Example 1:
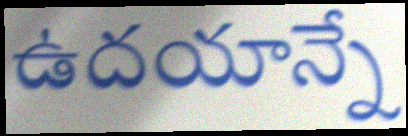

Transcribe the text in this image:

ఉదయాన్నే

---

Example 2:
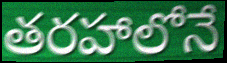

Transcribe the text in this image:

తరహాలోనే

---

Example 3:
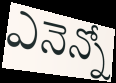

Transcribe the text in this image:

ఎనెన్నో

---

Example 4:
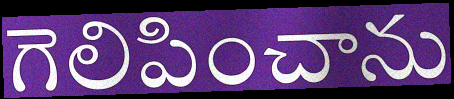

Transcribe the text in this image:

గెలిపించాను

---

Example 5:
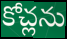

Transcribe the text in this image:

కోచ్లను